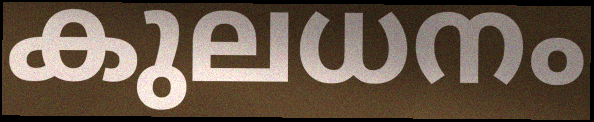
കുലധനം